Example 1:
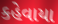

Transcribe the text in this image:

કહેવાયા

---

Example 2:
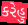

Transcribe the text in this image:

કરેહુ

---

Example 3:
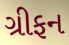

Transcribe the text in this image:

ગ્રીફન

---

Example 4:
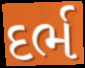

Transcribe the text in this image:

દર્ભ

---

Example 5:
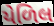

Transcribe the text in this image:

યેળિલ